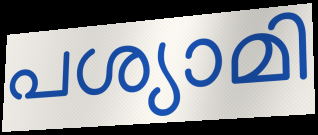
പശ്യാമി